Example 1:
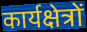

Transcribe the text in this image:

कार्यक्षेत्रों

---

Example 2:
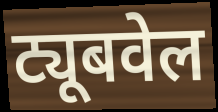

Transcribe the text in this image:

ट्यूबवेल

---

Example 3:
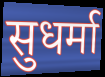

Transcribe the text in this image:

सुधर्मा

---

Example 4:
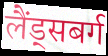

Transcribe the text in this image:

लैंड्सबर्ग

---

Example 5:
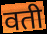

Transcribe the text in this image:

वती